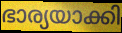
ഭാര്യയാക്കി